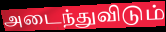
அடைந்துவிடும்